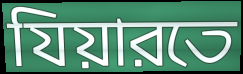
যিয়ারতে